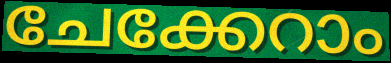
ചേക്കേറാം